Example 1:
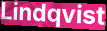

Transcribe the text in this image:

Lindqvist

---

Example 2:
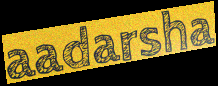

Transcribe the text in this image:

aadarsha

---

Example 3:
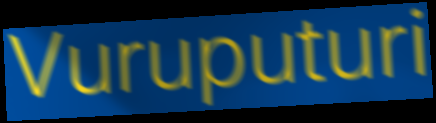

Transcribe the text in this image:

Vuruputuri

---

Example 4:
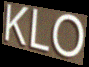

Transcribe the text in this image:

KLO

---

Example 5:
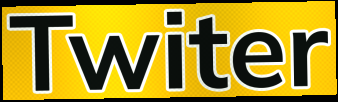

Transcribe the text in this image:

Twiter